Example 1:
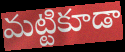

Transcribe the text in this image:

మట్టికూడా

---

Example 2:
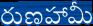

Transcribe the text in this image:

రుణహామీ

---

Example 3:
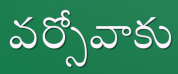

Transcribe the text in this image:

వర్సోవాకు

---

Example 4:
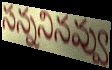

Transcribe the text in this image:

సన్ననినవ్వు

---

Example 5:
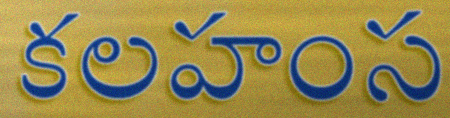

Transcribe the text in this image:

కలహంస